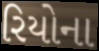
રિયોના